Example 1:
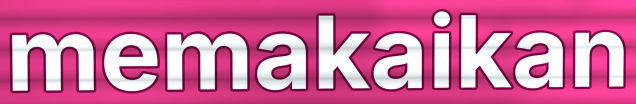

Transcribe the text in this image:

memakaikan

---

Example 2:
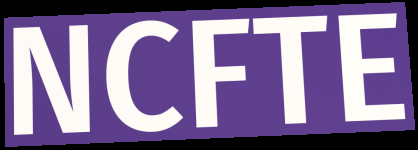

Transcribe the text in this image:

NCFTE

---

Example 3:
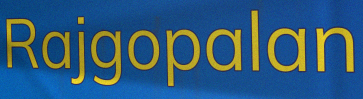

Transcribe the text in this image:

Rajgopalan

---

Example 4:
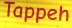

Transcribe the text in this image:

Tappeh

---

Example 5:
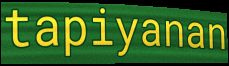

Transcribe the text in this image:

tapiyanan